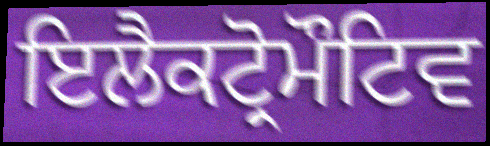
ਇਲੈਕਟ੍ਰੋਮੌਟਿਵ